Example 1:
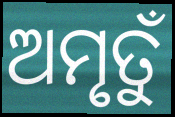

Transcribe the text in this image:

ଅମୃତୁଁ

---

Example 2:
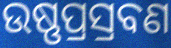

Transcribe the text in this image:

ଉଷ୍ଣପ୍ରସ୍ରବଣ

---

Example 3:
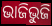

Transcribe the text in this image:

ଭାଜିଭୁଜି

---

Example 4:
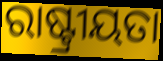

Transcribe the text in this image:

ରାଷ୍ଟ୍ରୀୟତା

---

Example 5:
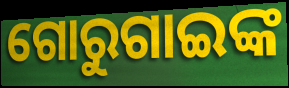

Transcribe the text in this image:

ଗୋରୁଗାଇଙ୍କ